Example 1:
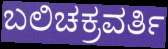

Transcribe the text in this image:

ಬಲಿಚಕ್ರವರ್ತಿ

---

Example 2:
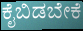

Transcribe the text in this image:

ಕೈಬಿಡಬೇಕೆ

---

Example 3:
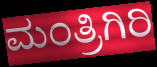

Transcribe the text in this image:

ಮಂತ್ರಿಗಿರಿ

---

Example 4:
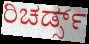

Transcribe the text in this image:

ರಿಚರ್ಡ್ಸ್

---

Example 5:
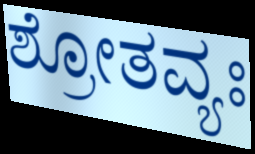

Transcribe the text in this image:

ಶ್ರೋತವ್ಯಃ